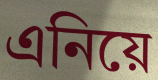
এনিয়ে